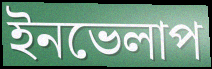
ইনভেলাপ